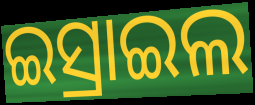
ଇସ୍ରାଇଲ